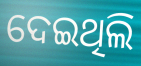
ଦେଇଥିଲି